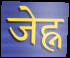
जेह्न